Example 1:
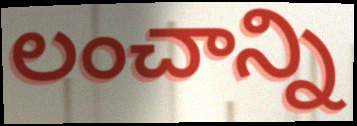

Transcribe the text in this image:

లంచాన్ని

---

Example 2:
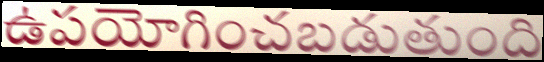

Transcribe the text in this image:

ఉపయోగించబడుతుంది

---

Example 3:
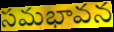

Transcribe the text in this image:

సమభావన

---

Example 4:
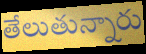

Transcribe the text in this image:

తేలుతున్నారు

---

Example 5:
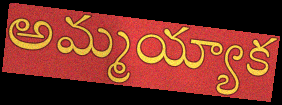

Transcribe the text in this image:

అమ్మయ్యాక